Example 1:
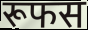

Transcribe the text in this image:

रूफस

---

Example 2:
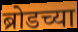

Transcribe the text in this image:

ब्रोडच्या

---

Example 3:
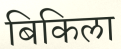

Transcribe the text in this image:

बिकिला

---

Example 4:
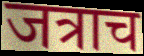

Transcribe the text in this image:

जत्राच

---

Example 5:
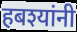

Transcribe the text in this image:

हबश्यांनी